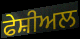
ਫੇਸ਼ੀਅਲ